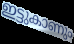
ഇട്ടുകാണും